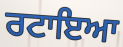
ਰਟਾਇਆ